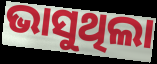
ଭାସୁଥିଲା